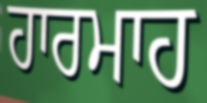
ਹਾਰਮਾਹ